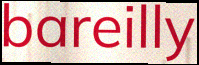
bareilly